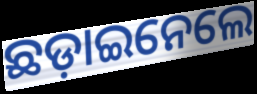
ଛଡ଼ାଇନେଲେ